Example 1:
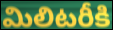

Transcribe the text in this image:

మిలిటరీకి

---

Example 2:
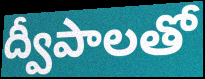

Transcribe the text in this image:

ద్వీపాలతో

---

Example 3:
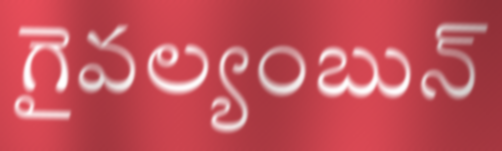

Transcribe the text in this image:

గైవల్యంబున్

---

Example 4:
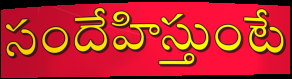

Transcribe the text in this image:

సందేహిస్తుంటే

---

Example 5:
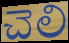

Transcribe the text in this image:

చెలి